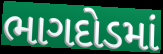
ભાગદોડમાં